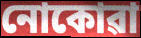
নোকোৱা